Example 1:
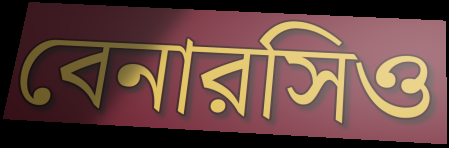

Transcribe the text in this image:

বেনারসিও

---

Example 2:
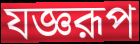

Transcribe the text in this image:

যজ্ঞরূপ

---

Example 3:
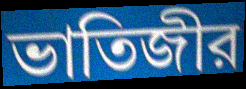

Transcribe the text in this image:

ভাতিজীর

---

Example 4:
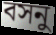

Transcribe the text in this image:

বসনু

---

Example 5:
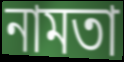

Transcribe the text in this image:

নামতা